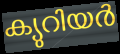
ക്യുറിയർ